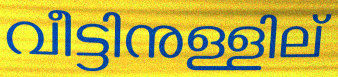
വീട്ടിനുള്ളില്